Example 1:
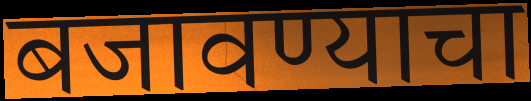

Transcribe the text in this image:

बजावण्याचा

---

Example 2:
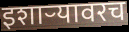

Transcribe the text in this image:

इशाऱ्यावरच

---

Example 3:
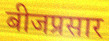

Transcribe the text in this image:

बीजप्रसार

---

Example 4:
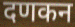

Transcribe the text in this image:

दणकन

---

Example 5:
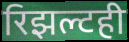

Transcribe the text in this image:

रिझल्टही